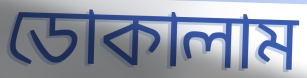
ডোকালাম